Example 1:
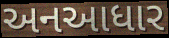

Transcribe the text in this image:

અનઆધાર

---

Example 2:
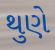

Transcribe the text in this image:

થુણે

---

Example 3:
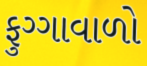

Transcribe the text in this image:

ફુગ્ગાવાળો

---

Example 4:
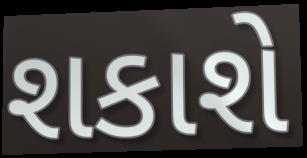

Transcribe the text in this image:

શકાશે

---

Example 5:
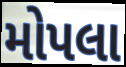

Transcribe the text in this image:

મોપલા